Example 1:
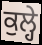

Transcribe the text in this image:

ਕੁਲ੍ਹੇ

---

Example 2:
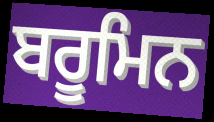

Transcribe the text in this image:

ਬਰੂਮਿਨ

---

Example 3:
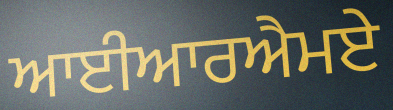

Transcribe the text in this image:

ਆਈਆਰਐਮਏ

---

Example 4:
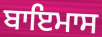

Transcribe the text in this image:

ਬਾਇਮਾਸ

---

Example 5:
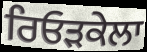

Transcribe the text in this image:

ਰਿਓੜਕੇਲਾ